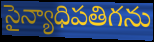
సైన్యాధిపతిగను